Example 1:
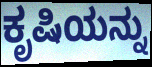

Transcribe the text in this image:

ಕೃಷಿಯನ್ನು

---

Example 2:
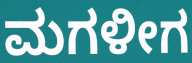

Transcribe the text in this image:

ಮಗಳೀಗ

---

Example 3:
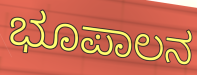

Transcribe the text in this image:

ಭೂಪಾಲನ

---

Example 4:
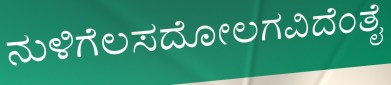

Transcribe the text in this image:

ನುಳಿಗೆಲಸದೋಲಗವಿದೆಂತೈ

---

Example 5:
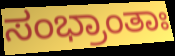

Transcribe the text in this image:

ಸಂಭ್ರಾಂತಾಃ